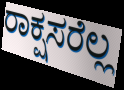
ರಾಕ್ಷಸರೆಲ್ಲ